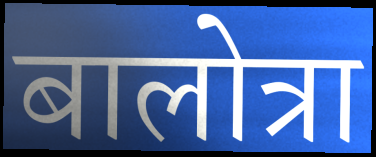
बालोत्रा